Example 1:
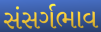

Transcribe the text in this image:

સંસર્ગભાવ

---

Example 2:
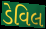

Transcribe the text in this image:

ડેવિલ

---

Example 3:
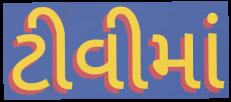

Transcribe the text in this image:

ટીવીમાં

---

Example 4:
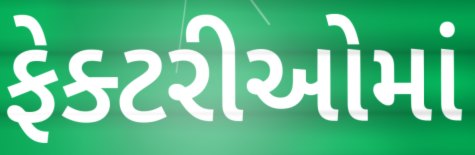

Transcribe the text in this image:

ફેક્ટરીઓમાં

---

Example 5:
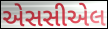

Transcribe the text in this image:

એસસીએલ